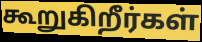
கூறுகிறீர்கள்